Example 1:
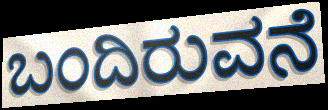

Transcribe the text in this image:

ಬಂದಿರುವನೆ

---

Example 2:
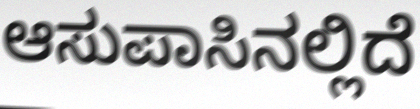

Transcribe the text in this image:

ಆಸುಪಾಸಿನಲ್ಲಿದೆ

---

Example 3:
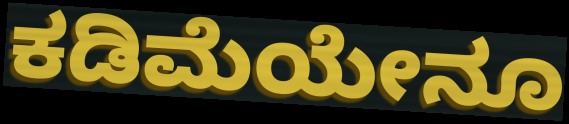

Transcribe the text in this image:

ಕಡಿಮೆಯೇನೂ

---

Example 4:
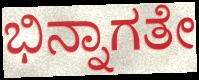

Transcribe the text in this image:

ಭಿನ್ನಾಗತೇ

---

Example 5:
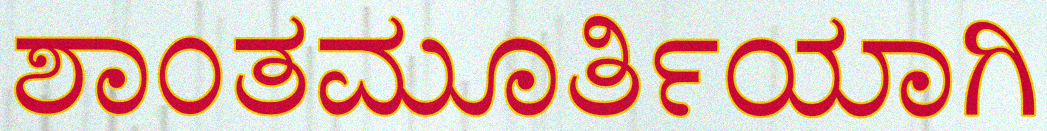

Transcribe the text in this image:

ಶಾಂತಮೂರ್ತಿಯಾಗಿ